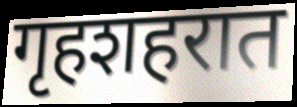
गृहशहरात